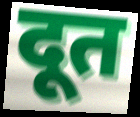
दूत